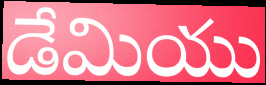
డేమియు